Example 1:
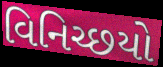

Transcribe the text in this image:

વિનિચ્છયો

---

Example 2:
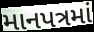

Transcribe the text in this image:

માનપત્રમાં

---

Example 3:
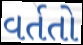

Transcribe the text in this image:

વર્તતો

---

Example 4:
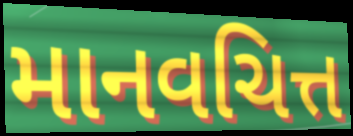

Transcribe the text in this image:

માનવચિત્ત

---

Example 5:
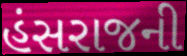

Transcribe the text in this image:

હંસરાજની